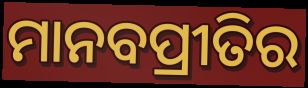
ମାନବପ୍ରୀତିର